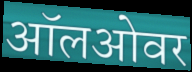
ऑलओवर